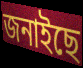
জনাইছে